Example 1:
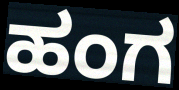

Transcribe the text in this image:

ಹಂಗ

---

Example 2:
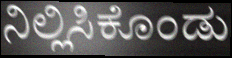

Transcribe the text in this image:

ನಿಲ್ಲಿಸಿಕೊಂಡು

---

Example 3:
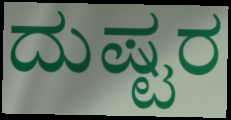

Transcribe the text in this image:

ದುಷ್ಟರ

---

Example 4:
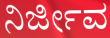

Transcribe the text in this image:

ನಿರ್ಜೀವ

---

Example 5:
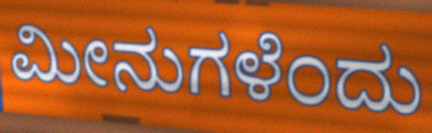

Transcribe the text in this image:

ಮೀನುಗಳೆಂದು